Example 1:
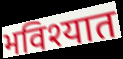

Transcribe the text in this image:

भविश्यात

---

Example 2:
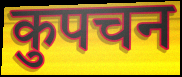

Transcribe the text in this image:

कुपचन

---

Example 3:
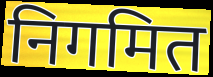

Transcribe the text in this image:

निगमित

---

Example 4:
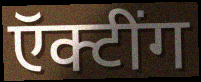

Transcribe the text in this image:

ऍक्टींग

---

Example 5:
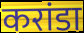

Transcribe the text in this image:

करांडा